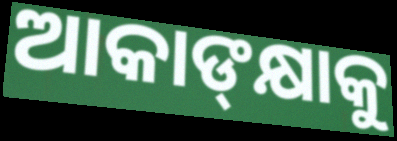
ଆକାଙ୍‍କ୍ଷାକୁ